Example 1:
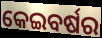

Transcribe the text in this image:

କେଇବର୍ଷର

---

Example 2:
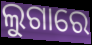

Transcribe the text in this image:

ଲୁଗାରେ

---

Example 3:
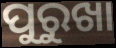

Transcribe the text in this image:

ପୁରୁଖା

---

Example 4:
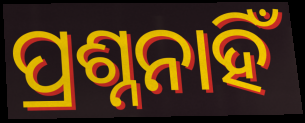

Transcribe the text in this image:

ପ୍ରଶ୍ନନାହିଁ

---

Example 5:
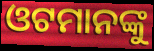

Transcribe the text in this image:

ଓଟମାନଙ୍କୁ